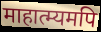
माहात्म्यमपि